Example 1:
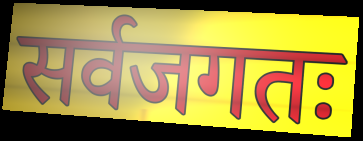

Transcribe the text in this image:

सर्वजगतः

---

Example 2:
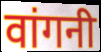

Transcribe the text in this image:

वांगनी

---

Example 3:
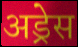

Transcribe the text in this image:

अड्रेस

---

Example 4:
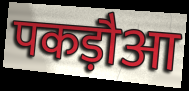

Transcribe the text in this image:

पकड़ौआ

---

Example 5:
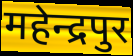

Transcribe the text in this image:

महेन्द्रपुर